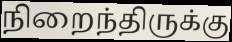
நிறைந்திருக்கு